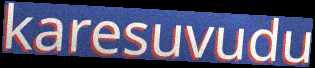
karesuvudu